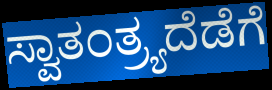
ಸ್ವಾತಂತ್ರ್ಯದೆಡೆಗೆ